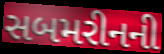
સબમરીનની